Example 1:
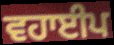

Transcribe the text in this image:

ਵਹਾਈਪ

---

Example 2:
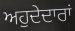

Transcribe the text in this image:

ਅਹੁਦੇਦਾਰਾਂ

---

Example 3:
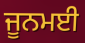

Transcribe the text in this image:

ਜੂਨਮਈ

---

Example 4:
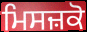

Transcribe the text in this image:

ਮਿਸਜ਼ਕੋ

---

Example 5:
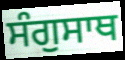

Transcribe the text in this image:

ਸੰਗੁਸਾਥ